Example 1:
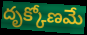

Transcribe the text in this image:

దృక్కోణమే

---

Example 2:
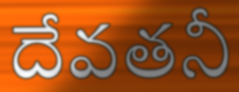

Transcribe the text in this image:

దేవతనీ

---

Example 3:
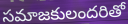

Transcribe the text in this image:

సమాజకులందరితో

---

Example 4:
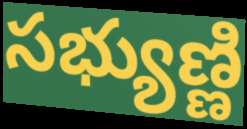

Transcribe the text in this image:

సభ్యుణ్ణి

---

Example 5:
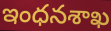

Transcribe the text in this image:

ఇంధనశాఖ